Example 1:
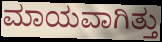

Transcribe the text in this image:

ಮಾಯವಾಗಿತ್ತು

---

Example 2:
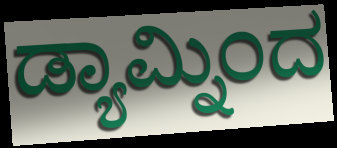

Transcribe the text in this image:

ಡ್ಯಾಮ್ನಿಂದ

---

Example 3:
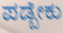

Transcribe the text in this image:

ಪಡ್ಬೇಕು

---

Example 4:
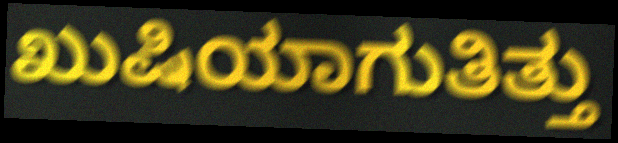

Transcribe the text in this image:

ಖುಷಿಯಾಗುತಿತ್ತು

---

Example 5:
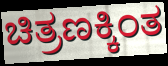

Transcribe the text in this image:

ಚಿತ್ರಣಕ್ಕಿಂತ